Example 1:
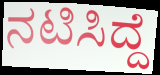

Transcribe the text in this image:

ನಟಿಸಿದ್ದೆ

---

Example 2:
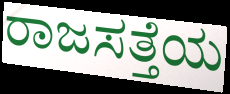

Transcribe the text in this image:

ರಾಜಸತ್ತೆಯ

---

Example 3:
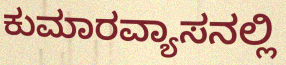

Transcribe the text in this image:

ಕುಮಾರವ್ಯಾಸನಲ್ಲಿ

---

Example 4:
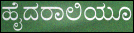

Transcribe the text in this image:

ಹೈದರಾಲಿಯೂ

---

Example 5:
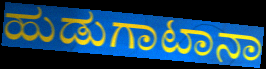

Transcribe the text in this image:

ಹುಡುಗಾಟಾನಾ